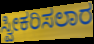
ಸ್ವೀಕರಿಸಲಾರ